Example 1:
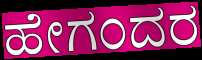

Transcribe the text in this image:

ಹೇಗಂದರ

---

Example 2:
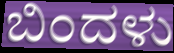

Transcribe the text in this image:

ಬಿಂದಳು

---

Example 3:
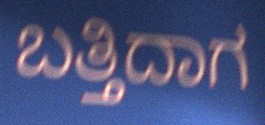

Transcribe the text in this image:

ಬತ್ತಿದಾಗ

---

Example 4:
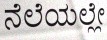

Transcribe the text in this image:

ನೆಲೆಯಲ್ಲೇ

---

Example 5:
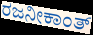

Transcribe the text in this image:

ರಜನೀಕಾಂತ್